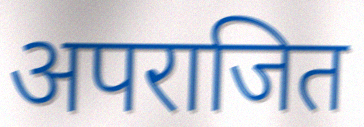
अपराजित